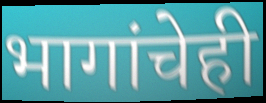
भागांचेही